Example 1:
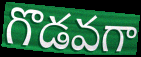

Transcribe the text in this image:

గొడవగా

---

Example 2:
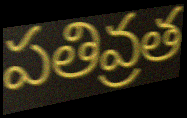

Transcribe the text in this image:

పతివ్రత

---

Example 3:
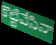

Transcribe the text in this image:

కొట్టివేసినా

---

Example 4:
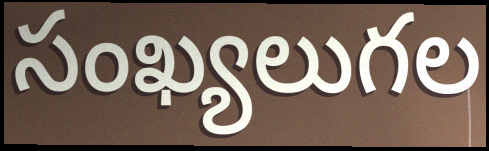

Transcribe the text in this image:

సంఖ్యలుగల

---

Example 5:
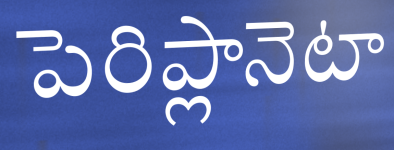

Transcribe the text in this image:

పెరిప్లానెటా